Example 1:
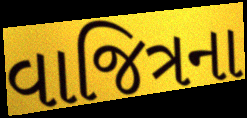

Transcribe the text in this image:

વાજિત્રના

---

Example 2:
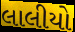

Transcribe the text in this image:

લાલીયો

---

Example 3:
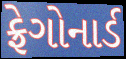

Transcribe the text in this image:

ફ્રેગોનાર્ડ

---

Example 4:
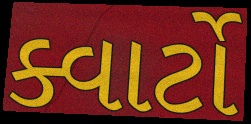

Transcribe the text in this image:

ક્વાર્ટો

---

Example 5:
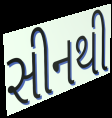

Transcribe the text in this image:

સીનથી